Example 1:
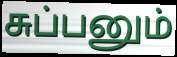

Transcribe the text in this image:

சுப்பனும்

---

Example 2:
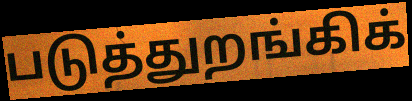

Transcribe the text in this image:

படுத்துறங்கிக்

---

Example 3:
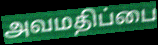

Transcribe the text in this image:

அவமதிப்பை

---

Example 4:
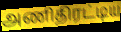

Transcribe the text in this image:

அணிதிரட்டிய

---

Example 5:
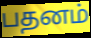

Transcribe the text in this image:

பதனம்